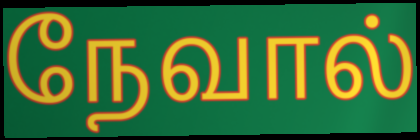
நேவால்